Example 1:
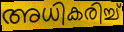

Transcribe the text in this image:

അധികരിച്ച്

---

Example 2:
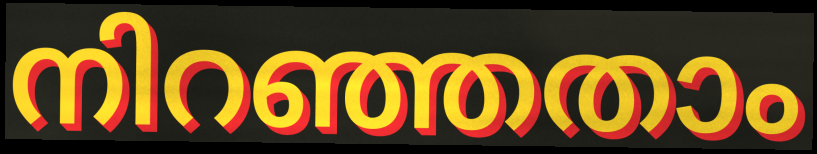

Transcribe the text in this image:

നിറഞ്ഞതാം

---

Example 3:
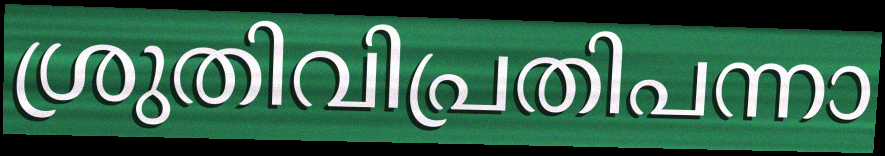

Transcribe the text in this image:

ശ്രുതിവിപ്രതിപന്നാ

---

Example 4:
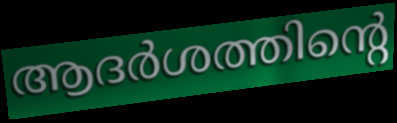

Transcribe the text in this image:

ആദർശത്തിന്റെ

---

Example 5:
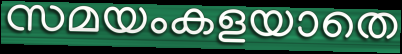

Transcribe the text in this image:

സമയംകളയാതെ